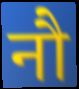
नौ